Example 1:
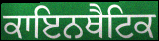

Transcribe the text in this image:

ਕਾਇਨਥੈਟਿਕ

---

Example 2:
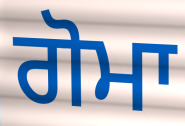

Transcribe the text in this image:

ਗੋਮਾ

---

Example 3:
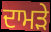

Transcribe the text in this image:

ਦਾਮੜੇ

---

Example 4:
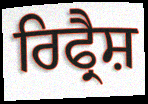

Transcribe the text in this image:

ਰਿਫ੍ਰੈਸ਼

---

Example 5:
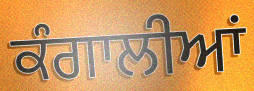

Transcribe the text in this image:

ਕੰਗਾਲੀਆਂ